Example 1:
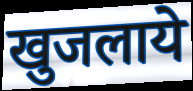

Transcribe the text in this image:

खुजलाये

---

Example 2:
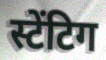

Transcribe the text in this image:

स्टेंटिग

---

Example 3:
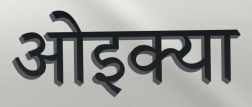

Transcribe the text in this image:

ओइक्या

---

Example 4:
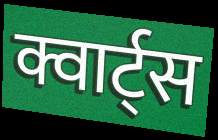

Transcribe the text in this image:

क्वार्ट्स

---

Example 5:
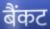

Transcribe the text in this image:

बैंकट